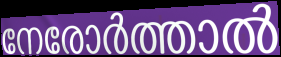
നേരോർത്താൽ